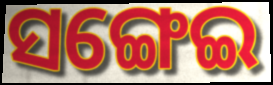
ସଙ୍ଗେଇ